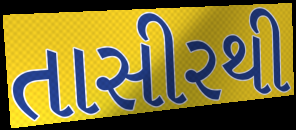
તાસીરથી